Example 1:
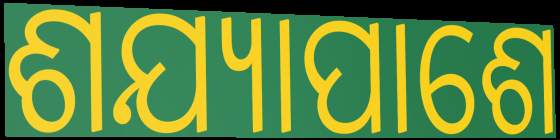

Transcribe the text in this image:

ଶଯ୍ୟାପାଶେ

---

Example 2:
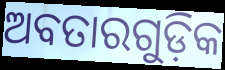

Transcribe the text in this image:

ଅବତାରଗୁଡ଼ିକ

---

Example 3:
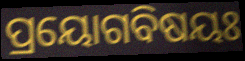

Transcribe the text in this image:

ପ୍ରୟୋଗବିଷୟଃ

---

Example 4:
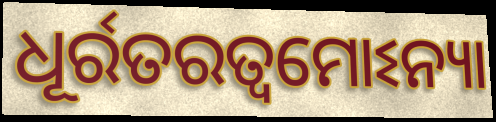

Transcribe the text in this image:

ଧୂର୍ରତରତ୍ୱମୋଽନ୍ୟା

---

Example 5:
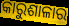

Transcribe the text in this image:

କାରୁଶାଳାର